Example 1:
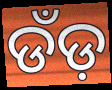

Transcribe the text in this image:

ଡଁଡ଼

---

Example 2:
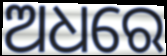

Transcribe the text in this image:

ଅଧରେ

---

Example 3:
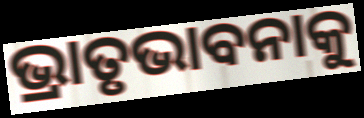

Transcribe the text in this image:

ଭ୍ରାତୃଭାବନାକୁ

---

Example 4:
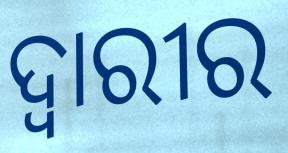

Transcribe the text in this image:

ଦ୍ୱାରୀର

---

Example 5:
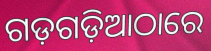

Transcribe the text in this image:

ଗଡ଼ଗଡ଼ିଆଠାରେ